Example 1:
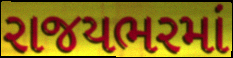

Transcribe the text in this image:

રાજયભરમાં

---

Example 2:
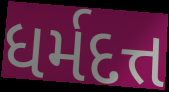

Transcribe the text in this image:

ધર્મદત્ત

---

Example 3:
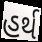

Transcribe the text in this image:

હર્થ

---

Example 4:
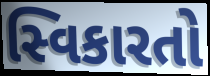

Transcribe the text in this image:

સ્વિકારતો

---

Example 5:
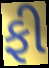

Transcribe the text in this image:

ફી